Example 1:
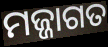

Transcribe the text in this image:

ମଜ୍ଜାଗତ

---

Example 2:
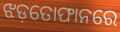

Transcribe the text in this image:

ଝଡ଼ତୋଫାନରେ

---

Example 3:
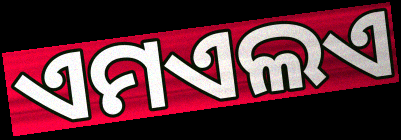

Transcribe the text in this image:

ଏମଏଲଏ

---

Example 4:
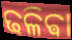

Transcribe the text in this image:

ଢଳିଵା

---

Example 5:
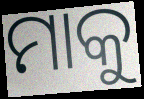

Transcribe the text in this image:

ମାକୁ